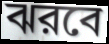
ঝরবে